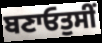
ਬਣਾਓਤੁਸੀਂ